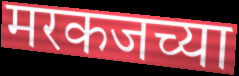
मरकजच्या